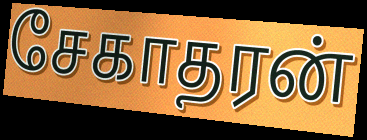
சேகாதரன்